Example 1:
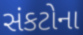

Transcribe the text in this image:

સંકટોના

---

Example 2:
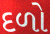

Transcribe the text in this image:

દળો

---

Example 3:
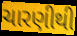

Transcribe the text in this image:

ચારણીથી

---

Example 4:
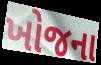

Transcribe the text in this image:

ખોજના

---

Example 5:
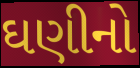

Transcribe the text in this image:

ઘણીનો